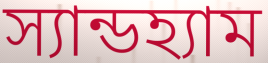
স্যান্ডহ্যাম